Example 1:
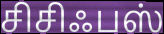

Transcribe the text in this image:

சிசிஃபஸ்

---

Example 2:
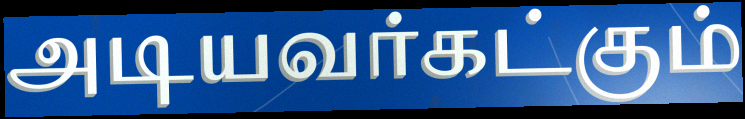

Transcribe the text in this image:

அடியவர்கட்கும்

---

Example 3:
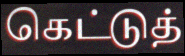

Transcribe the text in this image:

கெட்டுத்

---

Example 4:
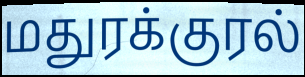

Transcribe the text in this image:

மதுரக்குரல்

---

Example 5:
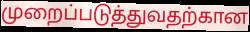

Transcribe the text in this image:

முறைப்படுத்துவதற்கான